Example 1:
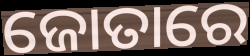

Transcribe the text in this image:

ଜୋତାରେ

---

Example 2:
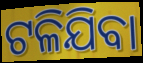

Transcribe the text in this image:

ଟଳିଯିବା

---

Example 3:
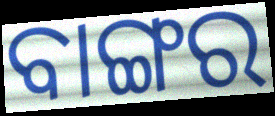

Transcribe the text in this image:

ବାଙ୍ଗର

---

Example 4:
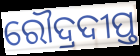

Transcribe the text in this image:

ରୌଦ୍ରଦୀପ୍ତ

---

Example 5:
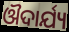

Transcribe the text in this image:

ଔଦାର୍ଯ୍ୟ